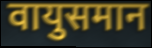
वायुसमान